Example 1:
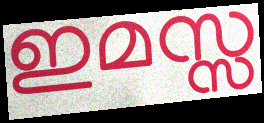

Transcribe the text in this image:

ഇമസ്സ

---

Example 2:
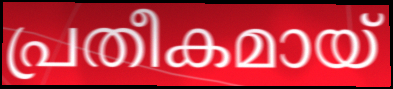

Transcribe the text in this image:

പ്രതീകമായ്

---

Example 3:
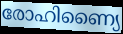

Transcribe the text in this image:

രോഹിണ്യൈ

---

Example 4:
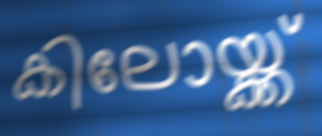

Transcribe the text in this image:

കിലോയ്ക്ക്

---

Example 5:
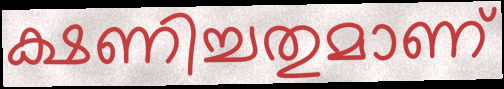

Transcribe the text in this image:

ക്ഷണിച്ചതുമാണ്